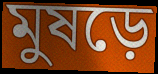
মুষড়ে